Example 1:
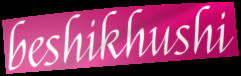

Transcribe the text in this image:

beshikhushi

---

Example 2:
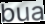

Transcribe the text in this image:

bua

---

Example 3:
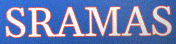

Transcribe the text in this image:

SRAMAS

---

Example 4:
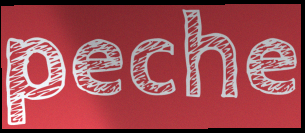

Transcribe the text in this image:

peche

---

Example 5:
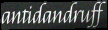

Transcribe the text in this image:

antidandruff